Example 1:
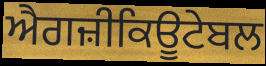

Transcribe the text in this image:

ਐਗਜ਼ੀਕਿਊਟੇਬਲ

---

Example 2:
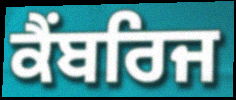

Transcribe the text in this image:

ਕੈਂਬਰਿਜ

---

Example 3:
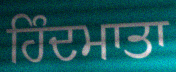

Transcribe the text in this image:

ਹਿੰਦਮਾਤਾ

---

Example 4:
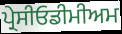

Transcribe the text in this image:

ਪ੍ਰੇਸੀਓਡੀਮੀਅਮ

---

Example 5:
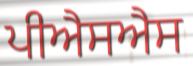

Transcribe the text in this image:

ਪੀਐਸਐਸ